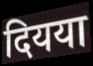
दियया